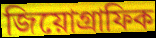
জিয়োগ্রাফিক